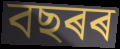
বছৰৰ